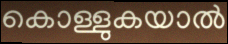
കൊള്ളുകയാൽ